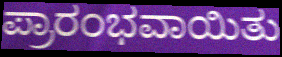
ಪ್ರಾರಂಭವಾಯಿತು